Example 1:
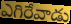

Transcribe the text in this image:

ఎగిరేవాడు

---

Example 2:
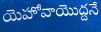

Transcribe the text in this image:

యెహోవాయొద్దనే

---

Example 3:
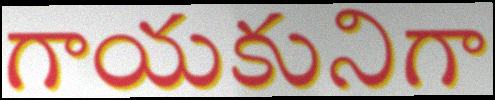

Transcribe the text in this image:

గాయకునిగా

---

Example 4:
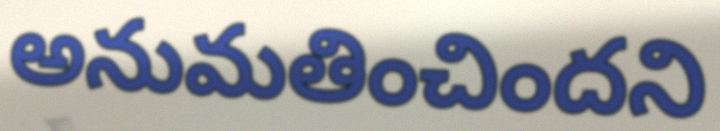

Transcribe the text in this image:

అనుమతించిందని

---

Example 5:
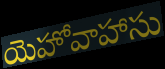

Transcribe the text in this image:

యెహోవాహాసు